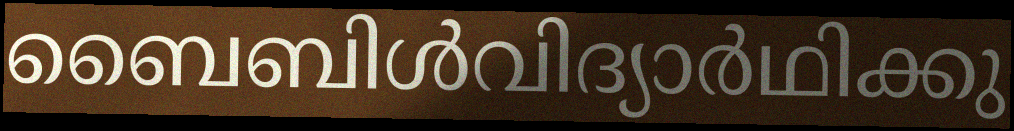
ബൈബിൾവിദ്യാർഥിക്കു